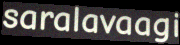
saralavaagi